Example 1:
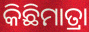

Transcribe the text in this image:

କିଛିମାତ୍ରା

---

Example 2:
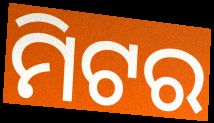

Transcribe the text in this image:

ମିଟର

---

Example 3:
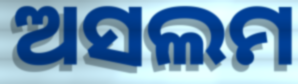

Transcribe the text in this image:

ଅସଲମ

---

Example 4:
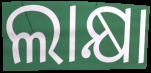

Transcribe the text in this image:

ଲାକ୍ଷା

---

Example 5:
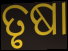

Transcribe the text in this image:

ତୃଷା